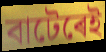
বাটেৰেই